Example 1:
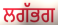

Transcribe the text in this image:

ਲਗੱਭਗ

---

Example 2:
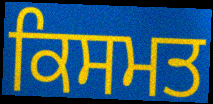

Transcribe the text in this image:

ਕਿਸਮਤ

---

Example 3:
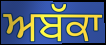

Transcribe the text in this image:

ਅਬੱਕਾ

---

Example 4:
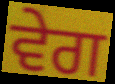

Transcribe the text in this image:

ਵੇਗ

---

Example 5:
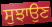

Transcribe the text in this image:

ਸੁਝਾਉਣ